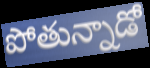
పోతున్నాడో